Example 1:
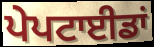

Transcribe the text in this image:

ਪੇਪਟਾਈਡਾਂ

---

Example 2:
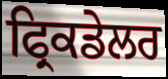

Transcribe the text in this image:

ਫ੍ਰਿਕਡੇਲਰ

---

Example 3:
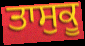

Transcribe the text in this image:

ਤਾਸੁਕੂ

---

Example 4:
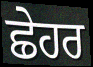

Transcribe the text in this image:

ਛੇਹਰ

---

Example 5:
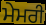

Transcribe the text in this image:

ਮੇਮਰੀ